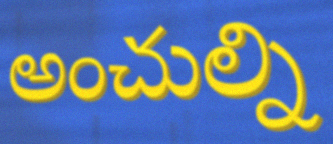
అంచుల్ని